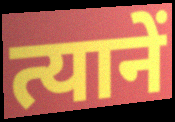
त्यानें